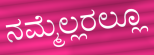
ನಮ್ಮೆಲ್ಲರಲ್ಲೂ